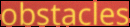
obstacles